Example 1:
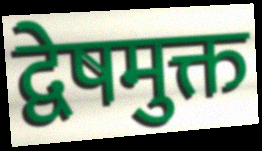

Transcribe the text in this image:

द्वेषमुक्त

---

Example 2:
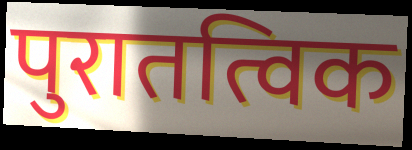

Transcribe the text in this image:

पुरातत्विक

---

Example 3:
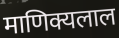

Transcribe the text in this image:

माणिक्यलाल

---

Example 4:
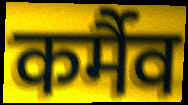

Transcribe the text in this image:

कर्मैव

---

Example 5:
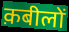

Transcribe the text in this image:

क़बीलों